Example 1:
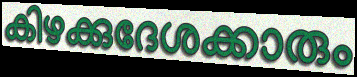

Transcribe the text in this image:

കിഴക്കുദേശക്കാരും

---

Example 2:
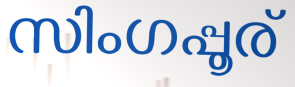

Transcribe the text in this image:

സിംഗപ്പൂര്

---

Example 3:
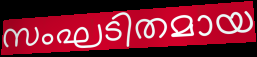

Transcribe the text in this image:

സംഘടിതമായ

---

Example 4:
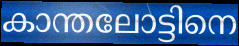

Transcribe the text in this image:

കാന്തലോട്ടിനെ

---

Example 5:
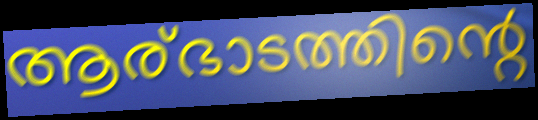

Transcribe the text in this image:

ആര്ഭാടത്തിന്റെ